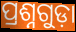
ପ୍ରଶ୍ନଗୁଡ଼ା